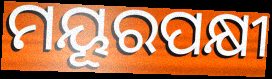
ମୟୂରପକ୍ଷୀ